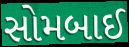
સોમબાઈ